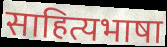
साहित्यभाषा